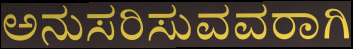
ಅನುಸರಿಸುವವರಾಗಿ